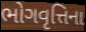
ભોગવૃત્તિના